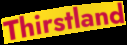
Thirstland